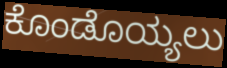
ಕೊಂಡೊಯ್ಯಲು